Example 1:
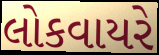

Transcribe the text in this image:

લોકવાયરે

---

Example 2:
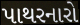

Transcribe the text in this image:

પાથરનારો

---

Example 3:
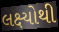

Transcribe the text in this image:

લક્ષ્યોથી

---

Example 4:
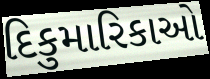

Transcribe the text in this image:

દિકુમારિકાઓ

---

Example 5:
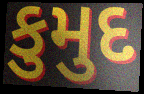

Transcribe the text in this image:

કુમુદ